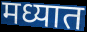
मध्यात